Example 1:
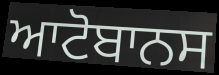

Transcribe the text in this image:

ਆਟੋਬਾਨਸ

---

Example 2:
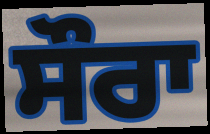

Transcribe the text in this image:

ਸੌਰਾ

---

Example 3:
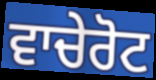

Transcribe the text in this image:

ਵਾਚੇਰੋਟ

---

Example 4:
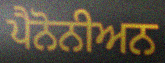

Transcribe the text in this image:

ਪੈਨੋਨੀਅਨ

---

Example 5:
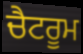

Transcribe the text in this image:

ਚੈਟਰੂਮ